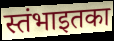
स्तंभाइतका